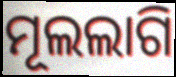
ମୂଲଲାଗି